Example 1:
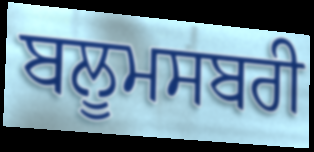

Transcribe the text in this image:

ਬਲੂਮਸਬਰੀ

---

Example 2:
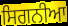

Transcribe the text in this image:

ਸਿਗਨੀਆ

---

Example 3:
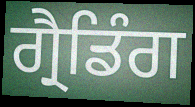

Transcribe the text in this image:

ਗ੍ਰੈਡਿੰਗ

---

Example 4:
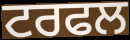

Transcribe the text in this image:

ਟਰਫਲ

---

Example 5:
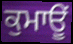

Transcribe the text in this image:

ਕੁਮਾਊਂ